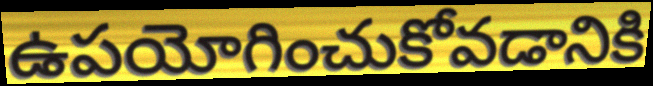
ఉపయోగించుకోవడానికి